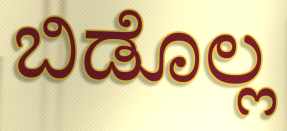
ಬಿಡೊಲ್ಲ